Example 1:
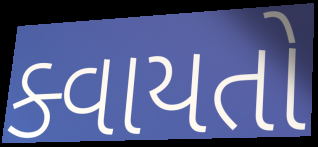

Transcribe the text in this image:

ક્વાયતો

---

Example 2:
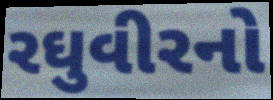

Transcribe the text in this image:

રઘુવીરનો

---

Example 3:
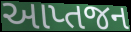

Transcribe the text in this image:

આપ્તજન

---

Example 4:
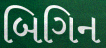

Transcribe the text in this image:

બિગિન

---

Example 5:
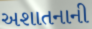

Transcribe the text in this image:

અશાતનાની